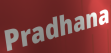
Pradhana